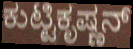
ಕುಟ್ಟಿಕೃಷ್ಣನ್